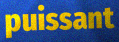
puissant